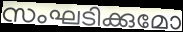
സംഘടിക്കുമോ